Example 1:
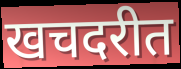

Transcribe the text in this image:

खचदरीत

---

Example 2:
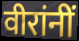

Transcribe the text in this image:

वीरांनीं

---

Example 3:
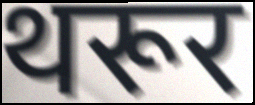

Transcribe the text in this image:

थरूर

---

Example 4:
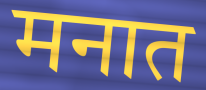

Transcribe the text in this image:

मनात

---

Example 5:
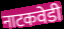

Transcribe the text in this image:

नाटकवेडी